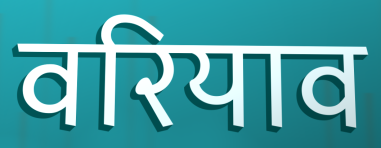
वरियाव